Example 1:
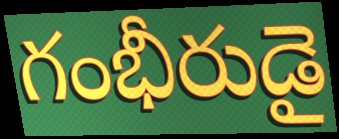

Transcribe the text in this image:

గంభీరుడై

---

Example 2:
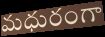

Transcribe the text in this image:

మధురంగా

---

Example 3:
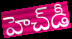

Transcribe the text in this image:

హెచ్‌డీ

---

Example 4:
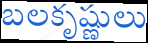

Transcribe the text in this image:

బలకృష్ణులు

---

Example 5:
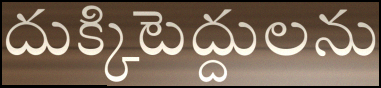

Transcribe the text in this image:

దుక్కిటెద్దులను